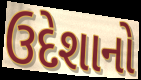
ઉદેશાનો